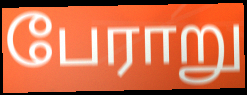
பேராறு